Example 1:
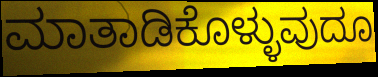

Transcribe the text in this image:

ಮಾತಾಡಿಕೊಳ್ಳುವುದೂ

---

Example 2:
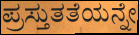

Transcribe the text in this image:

ಪ್ರಸ್ತುತತೆಯನ್ನೇ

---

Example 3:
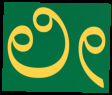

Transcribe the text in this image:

ಲೀ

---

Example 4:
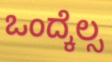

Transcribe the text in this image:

ಒಂದ್ಕೆಲ್ಸ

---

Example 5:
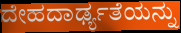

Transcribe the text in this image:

ದೇಹದಾರ್ಢ್ಯತೆಯನ್ನು